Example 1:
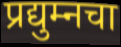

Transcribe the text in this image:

प्रद्युम्नचा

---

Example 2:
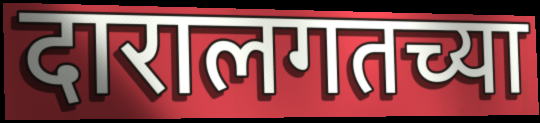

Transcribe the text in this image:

दारालगतच्या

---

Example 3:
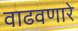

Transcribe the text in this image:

वाढवणारे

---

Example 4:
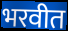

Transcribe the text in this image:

भरवीत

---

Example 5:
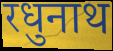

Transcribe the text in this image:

रधुनाथ